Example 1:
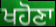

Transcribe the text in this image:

ਖਹੋਣਾ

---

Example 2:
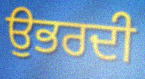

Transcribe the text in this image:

ਉਭਰਦੀ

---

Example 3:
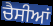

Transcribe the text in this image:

ਚੈਸੀਆਂ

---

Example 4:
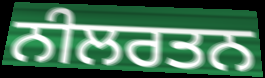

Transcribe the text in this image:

ਨੀਲਰਤਨ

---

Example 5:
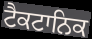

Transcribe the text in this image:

ਟੈਕਟਾਨਿਕ